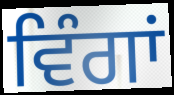
ਵਿੰਗਾਂ